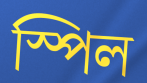
স্পিল